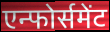
एन्फोर्समेंट